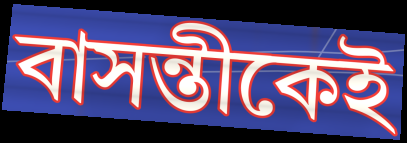
বাসন্তীকেই